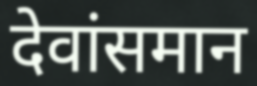
देवांसमान